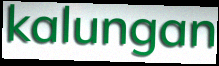
kalungan